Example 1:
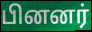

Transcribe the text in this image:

பினனர்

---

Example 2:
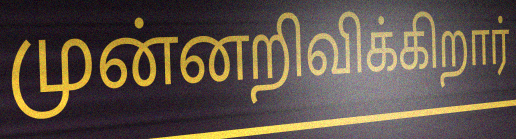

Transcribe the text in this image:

முன்னறிவிக்கிறார்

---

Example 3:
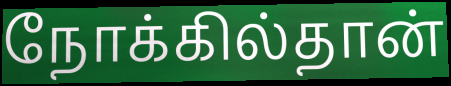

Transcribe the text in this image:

நோக்கில்தான்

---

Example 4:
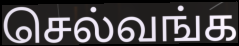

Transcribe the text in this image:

செல்வங்க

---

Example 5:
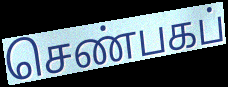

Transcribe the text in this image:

செண்பகப்